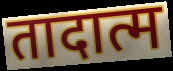
तादात्म